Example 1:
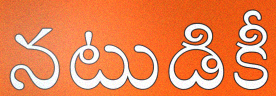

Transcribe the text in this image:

నటుడికీ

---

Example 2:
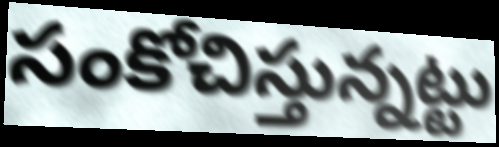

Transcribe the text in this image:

సంకోచిస్తున్నట్టు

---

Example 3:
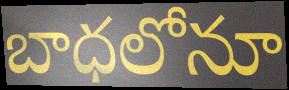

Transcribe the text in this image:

బాధలోనూ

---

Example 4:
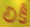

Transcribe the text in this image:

లికీ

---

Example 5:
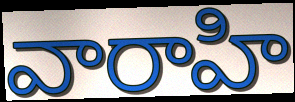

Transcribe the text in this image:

వారాహి